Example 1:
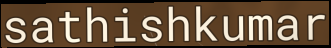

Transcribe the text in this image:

sathishkumar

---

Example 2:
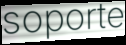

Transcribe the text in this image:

soporte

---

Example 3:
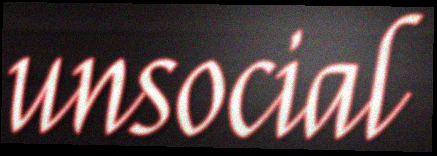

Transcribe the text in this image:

unsocial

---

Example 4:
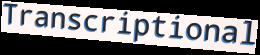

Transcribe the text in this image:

Transcriptional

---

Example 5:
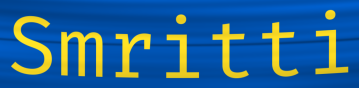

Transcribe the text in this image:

Smritti